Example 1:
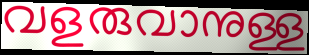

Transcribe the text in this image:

വളരുവാനുള്ള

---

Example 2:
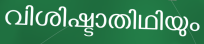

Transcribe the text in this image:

വിശിഷ്ടാതിഥിയും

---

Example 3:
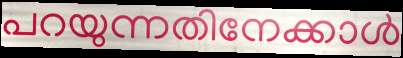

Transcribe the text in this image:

പറയുന്നതിനേക്കാൾ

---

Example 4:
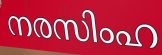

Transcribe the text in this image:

നരസിംഹ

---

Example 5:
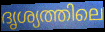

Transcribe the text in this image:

ദൃശ്യത്തിലെ